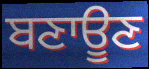
ਬਣਾਊਣ